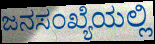
ಜನಸಂಖ್ಯೆಯಲ್ಲಿ